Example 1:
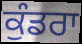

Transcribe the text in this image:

ਕੁੰਡਰਾ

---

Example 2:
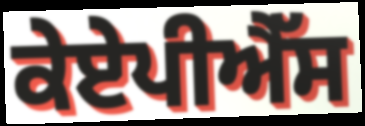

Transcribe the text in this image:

ਕੇਏਪੀਐੱਸ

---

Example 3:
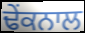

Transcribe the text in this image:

ਢੇਂਕਨਾਲ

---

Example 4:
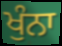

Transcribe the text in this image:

ਖੁੰਨਾ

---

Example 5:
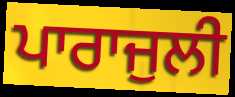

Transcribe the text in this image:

ਪਾਰਾਜੁਲੀ